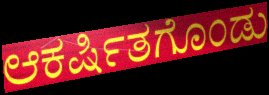
ಆಕರ್ಷಿತಗೊಂಡು